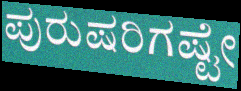
ಪುರುಷರಿಗಷ್ಟೇ